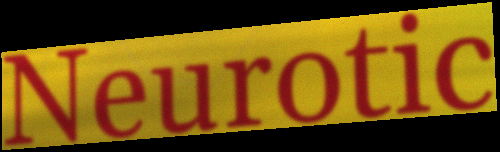
Neurotic